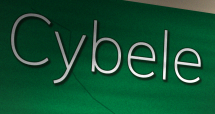
Cybele